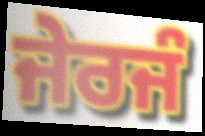
ਜੇਰਜੰ